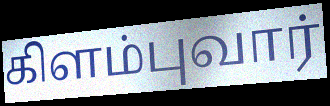
கிளம்புவார்